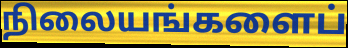
நிலையங்களைப்